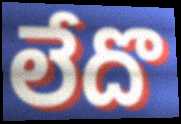
లేదొ